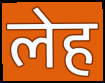
लेह